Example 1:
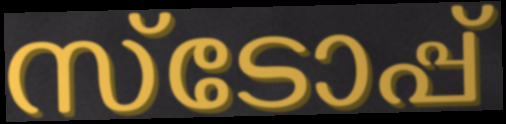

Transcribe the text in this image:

സ്ടോപ്പ്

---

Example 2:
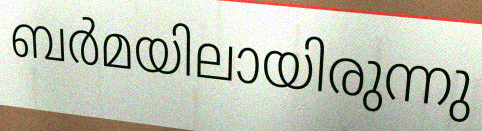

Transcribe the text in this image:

ബർമയിലായിരുന്നു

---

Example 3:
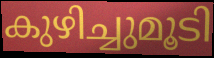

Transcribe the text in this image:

കുഴിച്ചുമൂടി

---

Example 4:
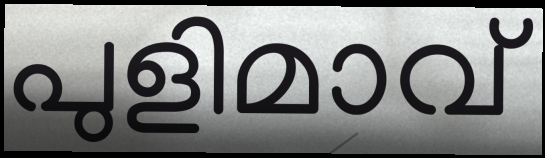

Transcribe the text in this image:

പുളിമാവ്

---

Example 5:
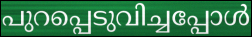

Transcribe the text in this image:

പുറപ്പെടുവിച്ചപ്പോൾ